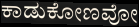
ಕಾಡುಕೋಣವೋ